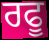
ਰਫੂ